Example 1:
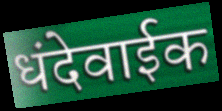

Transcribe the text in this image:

धंदेवाईक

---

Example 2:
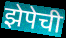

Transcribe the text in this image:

झेपेची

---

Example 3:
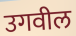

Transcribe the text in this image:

उगवील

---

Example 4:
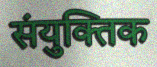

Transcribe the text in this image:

संयुक्तिक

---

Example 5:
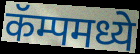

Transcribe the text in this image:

कॅम्पमध्ये